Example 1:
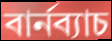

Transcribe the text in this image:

বার্নব্যাচ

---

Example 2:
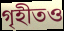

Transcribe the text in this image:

গৃহীতও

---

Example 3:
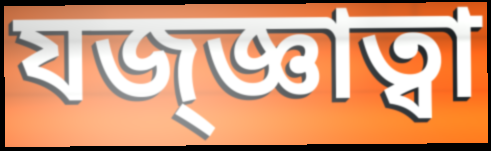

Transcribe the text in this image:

যজ্জ্ঞাত্বা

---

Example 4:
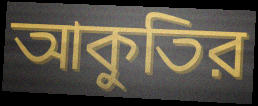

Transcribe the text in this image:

আকুতির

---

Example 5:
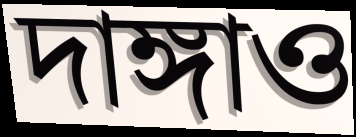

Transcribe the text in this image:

দাঙ্গাও